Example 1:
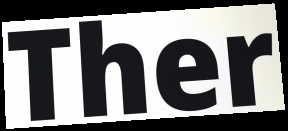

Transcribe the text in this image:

Ther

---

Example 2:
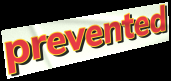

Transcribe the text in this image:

prevented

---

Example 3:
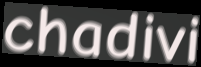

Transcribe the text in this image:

chadivi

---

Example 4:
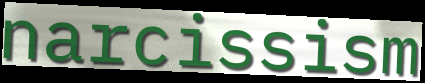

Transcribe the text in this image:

narcissism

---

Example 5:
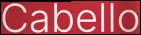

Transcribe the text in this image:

Cabello